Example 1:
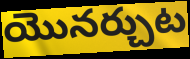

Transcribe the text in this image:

యొనర్చుట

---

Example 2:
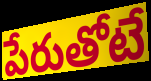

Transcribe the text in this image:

పేరుతోటే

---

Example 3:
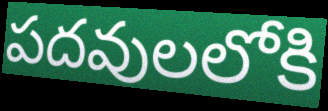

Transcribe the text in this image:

పదవులలోకి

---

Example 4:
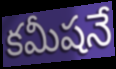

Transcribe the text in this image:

కమీషనే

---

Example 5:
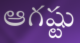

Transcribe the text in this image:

ఆగష్టు